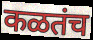
कळतंच